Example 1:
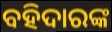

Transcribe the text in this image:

ବହିଦାରଙ୍କ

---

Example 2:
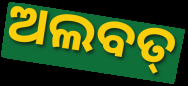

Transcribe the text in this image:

ଅଲବତ୍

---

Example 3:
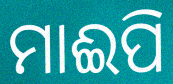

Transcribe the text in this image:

ମାଈପି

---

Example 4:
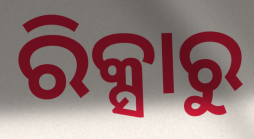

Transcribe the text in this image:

ରିକ୍ସାରୁ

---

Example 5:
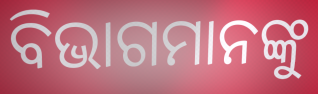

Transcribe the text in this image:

ବିଭାଗମାନଙ୍କୁ